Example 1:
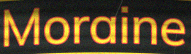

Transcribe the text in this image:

Moraine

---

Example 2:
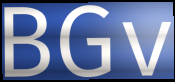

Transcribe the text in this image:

BGv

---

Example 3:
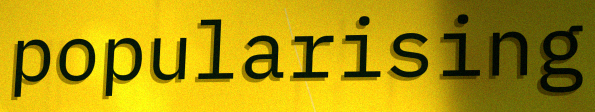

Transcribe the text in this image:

popularising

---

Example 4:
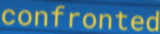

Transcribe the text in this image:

confronted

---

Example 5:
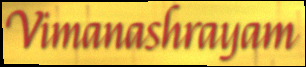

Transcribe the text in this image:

Vimanashrayam